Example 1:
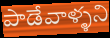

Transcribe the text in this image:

పాడేవాళ్ళని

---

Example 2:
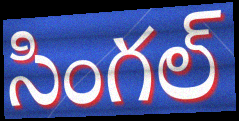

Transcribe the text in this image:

సింగల్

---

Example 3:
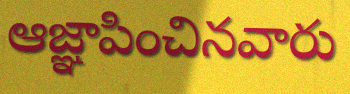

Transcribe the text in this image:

ఆజ్ఞాపించినవారు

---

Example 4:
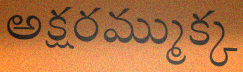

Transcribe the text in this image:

అక్షరమ్ముక్క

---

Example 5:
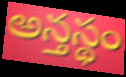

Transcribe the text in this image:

అన్తస్థం